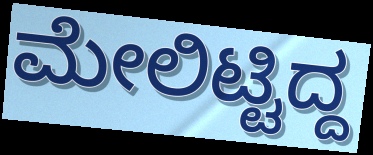
ಮೇಲಿಟ್ಟಿದ್ದ